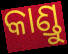
କାଣ୍ଡୁ